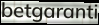
betgaranti